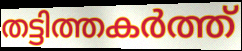
തട്ടിത്തകർത്ത്